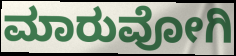
ಮಾರುವೋಗಿ